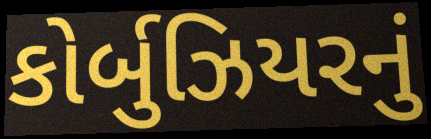
કોર્બુઝિયરનું